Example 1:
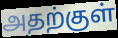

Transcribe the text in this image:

அதற்குள்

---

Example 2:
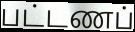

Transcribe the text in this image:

பட்டணப்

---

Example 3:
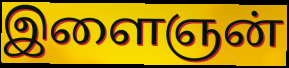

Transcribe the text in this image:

இளைஞன்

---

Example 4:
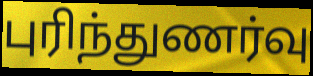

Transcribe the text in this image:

புரிந்துணர்வு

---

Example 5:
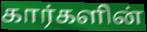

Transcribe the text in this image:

கார்களின்